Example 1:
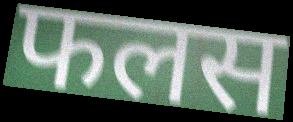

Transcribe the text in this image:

फलस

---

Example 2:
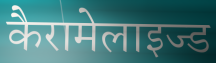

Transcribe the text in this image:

कैरामेलाइज्ड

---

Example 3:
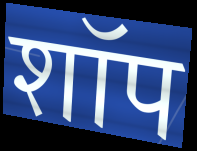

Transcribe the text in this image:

शॉप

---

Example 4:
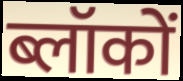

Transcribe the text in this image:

ब्लॉकों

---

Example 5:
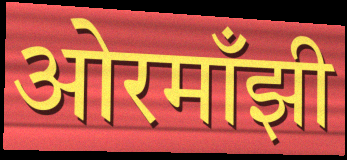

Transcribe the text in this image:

ओरमाँझी